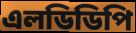
এলডিডিপি